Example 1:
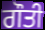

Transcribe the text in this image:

ਗੌਤੀ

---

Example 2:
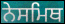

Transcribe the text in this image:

ਨੇਸਮਿਥ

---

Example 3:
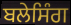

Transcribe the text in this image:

ਬਲੇਸਿੰਗ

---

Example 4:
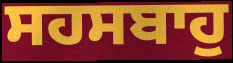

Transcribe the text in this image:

ਸਹਸਬਾਹੁ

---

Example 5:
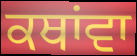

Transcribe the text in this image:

ਕਥਾਂਵਾ